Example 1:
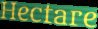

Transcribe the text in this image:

Hectare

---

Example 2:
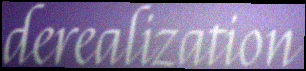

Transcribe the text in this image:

derealization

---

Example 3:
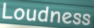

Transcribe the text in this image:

Loudness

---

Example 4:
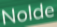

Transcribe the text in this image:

Nolde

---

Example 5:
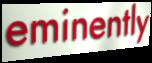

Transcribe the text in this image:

eminently